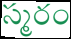
స్మరం